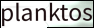
planktos